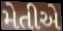
મેતીએ